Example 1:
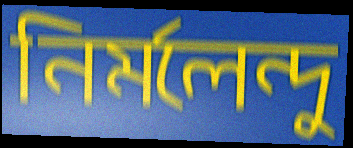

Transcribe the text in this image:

নির্মলেন্দু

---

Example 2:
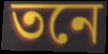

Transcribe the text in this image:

তনে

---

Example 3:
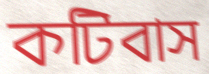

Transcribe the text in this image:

কটিবাস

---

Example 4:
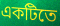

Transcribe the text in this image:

একটিতে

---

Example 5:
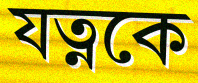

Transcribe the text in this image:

যত্নকে